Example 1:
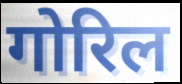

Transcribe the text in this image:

गोरिल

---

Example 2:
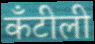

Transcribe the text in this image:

कँटीली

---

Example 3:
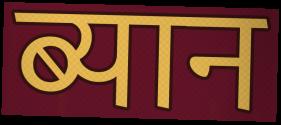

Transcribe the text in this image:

ब्यान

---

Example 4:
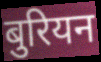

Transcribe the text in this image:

बुरियन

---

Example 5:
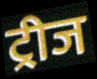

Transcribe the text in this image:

ट्रीज